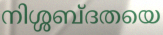
നിശ്ശബ്ദതയെ